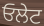
ਓਲੇਟ